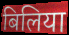
बिलिया